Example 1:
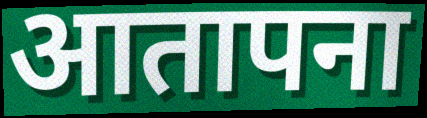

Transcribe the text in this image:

आतापना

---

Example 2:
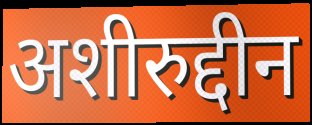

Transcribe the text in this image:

अशीरुद्दीन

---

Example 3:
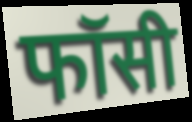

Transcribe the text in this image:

फॉसी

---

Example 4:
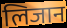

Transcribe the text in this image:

लिजान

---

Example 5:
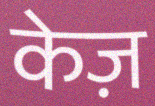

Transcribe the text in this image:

केज़